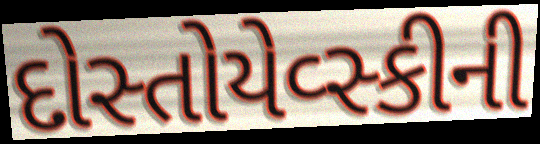
દોસ્તોયેવ્સ્કીની